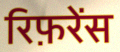
रिफ़रेंस